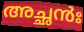
അച്ഛൻഃ